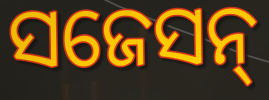
ସଜେସନ୍